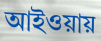
আইওয়ায়